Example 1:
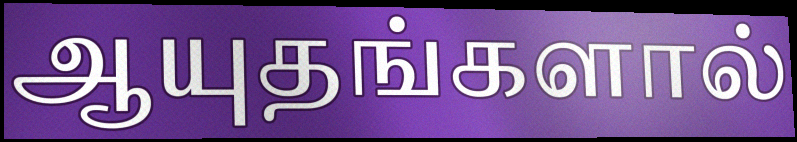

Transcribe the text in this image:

ஆயுதங்களால்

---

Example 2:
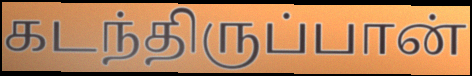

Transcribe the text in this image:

கடந்திருப்பான்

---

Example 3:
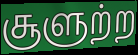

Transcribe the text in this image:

சூளுற்ற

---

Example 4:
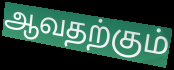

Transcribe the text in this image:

ஆவதற்கும்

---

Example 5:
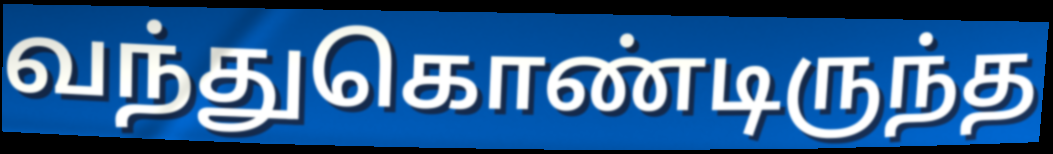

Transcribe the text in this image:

வந்துகொண்டிருந்த